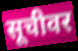
सूचीवर